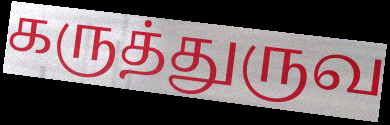
கருத்துருவ